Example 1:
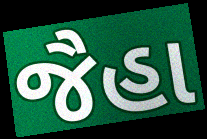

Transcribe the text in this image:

જૈહા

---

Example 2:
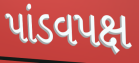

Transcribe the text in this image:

પાંડવપક્ષ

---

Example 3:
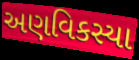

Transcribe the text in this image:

અણવિકસ્યા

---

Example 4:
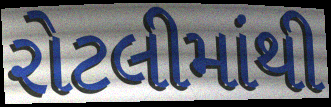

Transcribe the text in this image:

રોટલીમાંથી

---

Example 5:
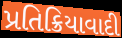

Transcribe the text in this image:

પ્રતિક્રિયાવાદી